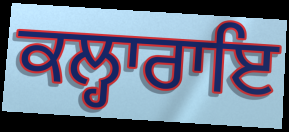
ਕਲ੍ਹਾਰਾਇ